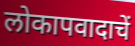
लोकापवादाचें